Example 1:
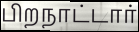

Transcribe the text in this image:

பிறநாட்டார்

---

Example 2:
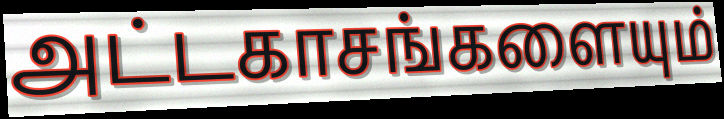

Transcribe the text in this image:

அட்டகாசங்களையும்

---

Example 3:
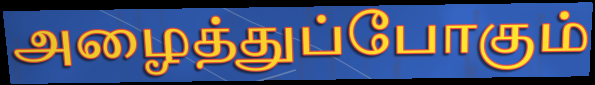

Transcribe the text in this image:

அழைத்துப்போகும்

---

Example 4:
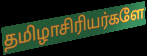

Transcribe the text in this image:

தமிழாசிரியர்களே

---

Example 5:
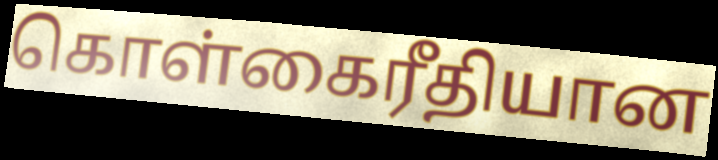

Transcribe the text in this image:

கொள்கைரீதியான